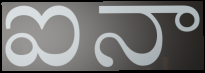
ఐనా